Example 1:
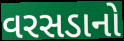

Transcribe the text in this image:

વરસડાનો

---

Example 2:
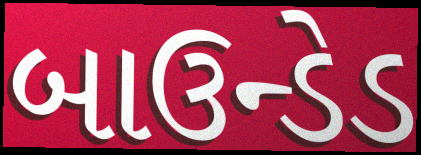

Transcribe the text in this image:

બાઉન્ડેડ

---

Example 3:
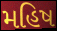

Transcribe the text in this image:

મહિષ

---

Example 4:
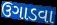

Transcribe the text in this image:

ઉગાડવા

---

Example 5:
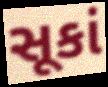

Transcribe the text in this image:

સૂકાં